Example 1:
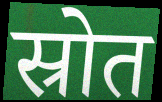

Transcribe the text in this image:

स्रोत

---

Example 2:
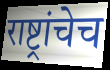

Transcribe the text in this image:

राष्ट्रांचेच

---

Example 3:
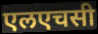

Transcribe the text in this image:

एलएचसी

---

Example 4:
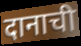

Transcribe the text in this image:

दानाची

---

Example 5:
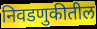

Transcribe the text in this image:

निवडणुकीतील